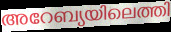
അറേബ്യയിലെത്തി